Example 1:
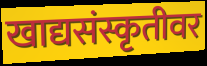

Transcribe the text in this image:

खाद्यसंस्कृतीवर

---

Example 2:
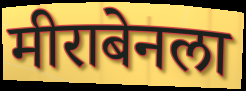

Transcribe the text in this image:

मीराबेनला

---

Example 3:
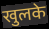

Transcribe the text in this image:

खुलके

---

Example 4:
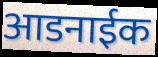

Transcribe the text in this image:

आडनाईक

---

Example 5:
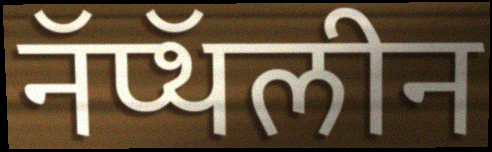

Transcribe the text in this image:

नॅप्थॅलीन